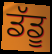
ਡੱਡੂ